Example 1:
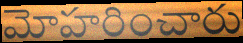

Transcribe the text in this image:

మోహరించారు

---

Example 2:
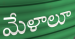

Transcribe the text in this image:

మేళాలూ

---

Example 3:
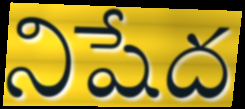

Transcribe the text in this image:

నిషేద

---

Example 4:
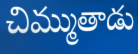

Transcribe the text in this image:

చిమ్ముతాడు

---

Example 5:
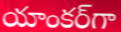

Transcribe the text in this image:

యాంకర్‌గా